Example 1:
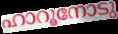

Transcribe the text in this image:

ഹാറൂനോടു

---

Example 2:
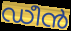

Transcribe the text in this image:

ഡീൻ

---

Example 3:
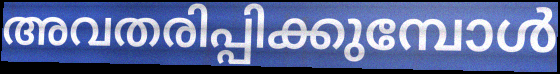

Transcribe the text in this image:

അവതരിപ്പിക്കുമ്പോൾ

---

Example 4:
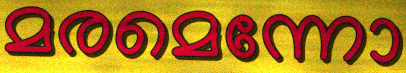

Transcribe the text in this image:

മരമെന്നോ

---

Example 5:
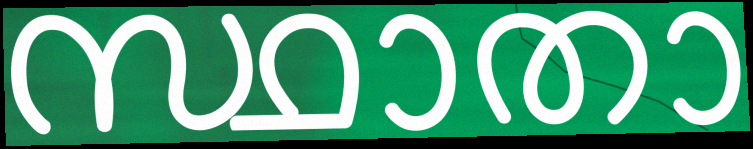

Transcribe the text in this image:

സ്ഥാതാ